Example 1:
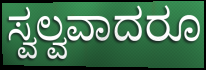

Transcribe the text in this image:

ಸ್ವಲ್ವವಾದರೂ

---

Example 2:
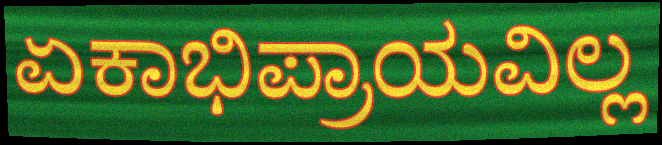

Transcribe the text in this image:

ಏಕಾಭಿಪ್ರಾಯವಿಲ್ಲ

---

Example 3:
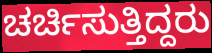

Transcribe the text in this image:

ಚರ್ಚಿಸುತ್ತಿದ್ದರು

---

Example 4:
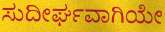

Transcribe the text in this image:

ಸುದೀರ್ಘವಾಗಿಯೇ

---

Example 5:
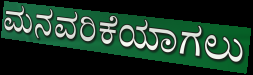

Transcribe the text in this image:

ಮನವರಿಕೆಯಾಗಲು